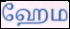
ஹேம